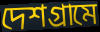
দেশগ্রামে